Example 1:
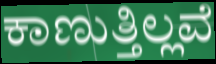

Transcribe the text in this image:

ಕಾಣುತ್ತಿಲ್ಲವೆ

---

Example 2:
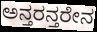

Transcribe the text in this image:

ಅನ್ತರನ್ತರೇನ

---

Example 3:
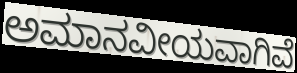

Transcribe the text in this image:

ಅಮಾನವೀಯವಾಗಿವೆ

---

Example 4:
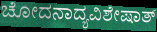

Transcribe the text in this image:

ಚೋದನಾದ್ಯವಿಶೇಷಾತ್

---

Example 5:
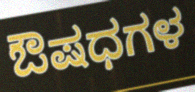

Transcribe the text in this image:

ಔಷಧಗಳ